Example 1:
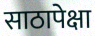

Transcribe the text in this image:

साठापेक्षा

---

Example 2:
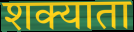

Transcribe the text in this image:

शक्याता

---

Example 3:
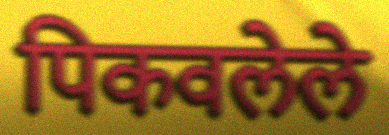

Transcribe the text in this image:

पिकवलेले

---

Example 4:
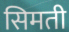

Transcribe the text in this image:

सिमती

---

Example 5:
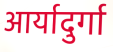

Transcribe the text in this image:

आर्यादुर्गा